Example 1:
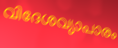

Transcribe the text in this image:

വിദേശവ്യാപാരം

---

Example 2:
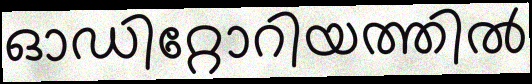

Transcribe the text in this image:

ഓഡിറ്റോറിയത്തിൽ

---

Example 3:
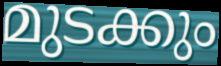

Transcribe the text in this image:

മുടക്കും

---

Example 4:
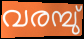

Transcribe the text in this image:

വരമ്പു്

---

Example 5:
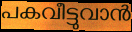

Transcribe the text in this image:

പകവീട്ടുവാൻ